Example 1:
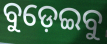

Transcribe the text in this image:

ବୁଡ଼େଇବୁ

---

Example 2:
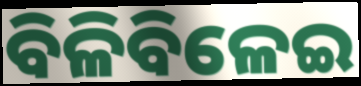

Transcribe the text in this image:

ବିଳିବିଳେଇ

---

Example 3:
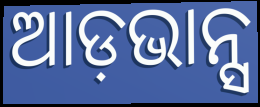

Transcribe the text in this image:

ଆଡ଼ଭାନ୍ସ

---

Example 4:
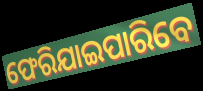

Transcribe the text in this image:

ଫେରିଯାଇପାରିବେ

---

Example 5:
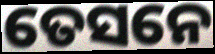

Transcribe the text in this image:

ତେସନେ